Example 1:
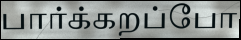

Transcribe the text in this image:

பார்க்கறப்போ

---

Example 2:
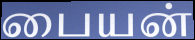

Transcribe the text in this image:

பையன்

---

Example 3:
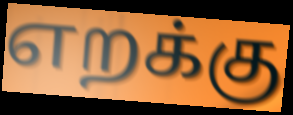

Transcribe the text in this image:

எறக்கு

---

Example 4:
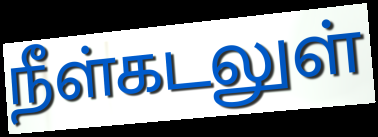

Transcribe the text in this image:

நீள்கடலுள்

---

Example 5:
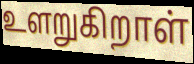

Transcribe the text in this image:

உளறுகிறாள்